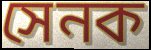
সেনক